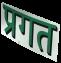
प्रगत